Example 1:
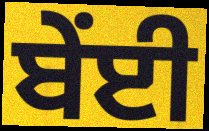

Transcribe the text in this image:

ਬੇਂਈ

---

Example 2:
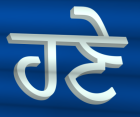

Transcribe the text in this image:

ਹਣੇ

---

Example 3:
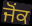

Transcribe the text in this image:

ਜੋਂਕ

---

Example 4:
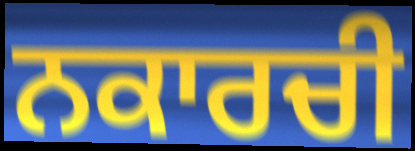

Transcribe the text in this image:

ਨਕਾਰਚੀ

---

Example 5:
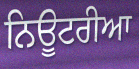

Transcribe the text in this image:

ਨਿਊਟਰੀਆ